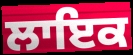
ਲਾਇਕ